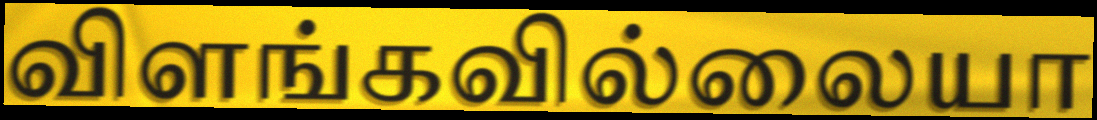
விளங்கவில்லையா